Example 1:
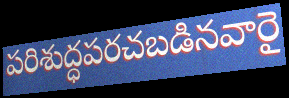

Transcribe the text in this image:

పరిశుద్ధపరచబడినవారై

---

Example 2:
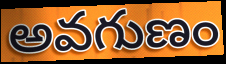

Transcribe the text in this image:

అవగుణం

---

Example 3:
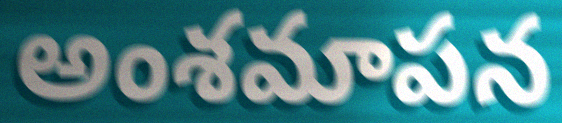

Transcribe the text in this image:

అంశమాపన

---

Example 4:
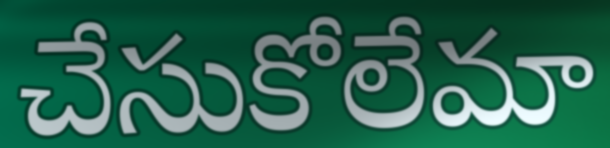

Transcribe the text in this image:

చేసుకోలేమా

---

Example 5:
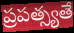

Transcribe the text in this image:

ప్రపత్స్యతే